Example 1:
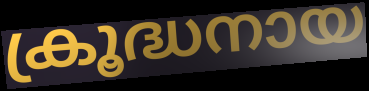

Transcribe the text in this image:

ക്രൂദ്ധനായ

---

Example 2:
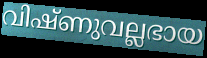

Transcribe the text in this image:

വിഷ്ണുവല്ലഭായ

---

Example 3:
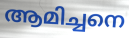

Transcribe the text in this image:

ആമിച്ചനെ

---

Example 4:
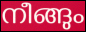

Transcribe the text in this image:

നീങ്ങും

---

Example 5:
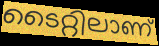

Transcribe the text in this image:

ടൈറ്റിലാണ്